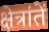
क्षेत्रांतें